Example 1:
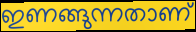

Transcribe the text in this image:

ഇണങ്ങുന്നതാണ്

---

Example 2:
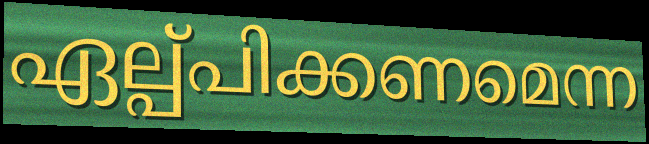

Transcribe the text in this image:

ഏല്പ്പിക്കണമെന്ന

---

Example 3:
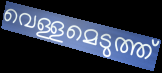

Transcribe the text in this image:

വെള്ളമെടുത്ത്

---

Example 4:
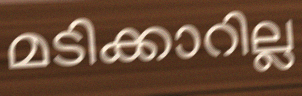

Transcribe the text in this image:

മടിക്കാറില്ല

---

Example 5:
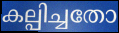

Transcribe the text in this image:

കല്പിച്ചതോ